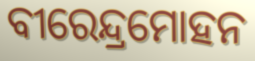
ବୀରେନ୍ଦ୍ରମୋହନ